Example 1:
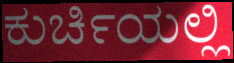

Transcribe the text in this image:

ಕುರ್ಚಿಯಲ್ಲಿ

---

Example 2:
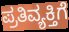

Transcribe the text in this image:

ಪ್ರತಿವ್ಯಕ್ತಿಗೆ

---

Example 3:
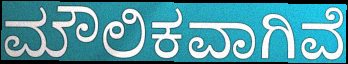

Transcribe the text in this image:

ಮೌಲಿಕವಾಗಿವೆ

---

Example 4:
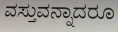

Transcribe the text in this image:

ವಸ್ತುವನ್ನಾದರೂ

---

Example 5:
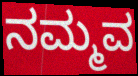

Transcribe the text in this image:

ನಮ್ಮವ